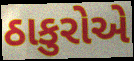
ઠાકુરોએ